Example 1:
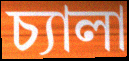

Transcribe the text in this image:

চ্যালা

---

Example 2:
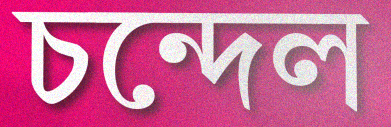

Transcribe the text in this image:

চন্দেল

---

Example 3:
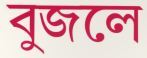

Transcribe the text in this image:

বুজলে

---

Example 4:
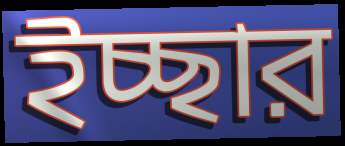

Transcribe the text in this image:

ইচ্ছার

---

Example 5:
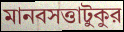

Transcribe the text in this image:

মানবসত্তাটুকুর